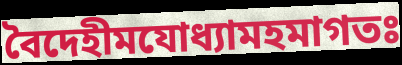
বৈদেহীমযোধ্যামহমাগতঃ